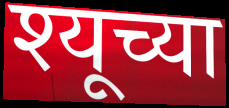
श्यूच्या